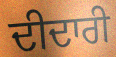
ਦੀਦਾਰੀ